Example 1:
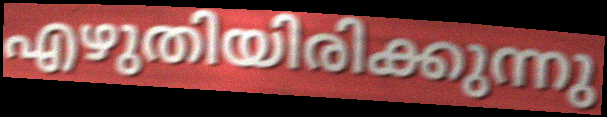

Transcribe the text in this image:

എഴുതിയിരിക്കുന്നു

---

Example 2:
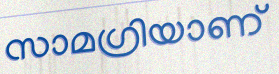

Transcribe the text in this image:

സാമഗ്രിയാണ്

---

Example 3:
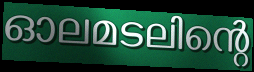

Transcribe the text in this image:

ഓലമടലിന്റെ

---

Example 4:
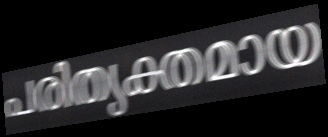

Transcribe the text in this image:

പരിത്യക്തമായ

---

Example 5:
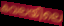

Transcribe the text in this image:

കവലയിലെ